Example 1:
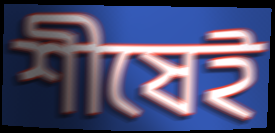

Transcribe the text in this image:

শীষেই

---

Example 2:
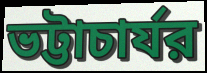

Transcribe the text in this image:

ভট্টাচার্যর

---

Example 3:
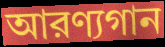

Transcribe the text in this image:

আরণ্যগান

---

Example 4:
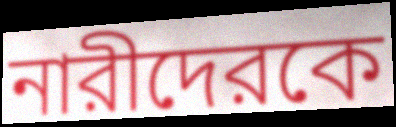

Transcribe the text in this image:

নারীদেরকে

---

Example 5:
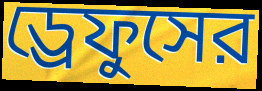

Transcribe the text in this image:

ড্রেফুসের